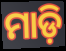
ମାଡ଼ି